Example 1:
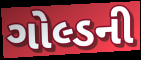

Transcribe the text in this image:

ગોલ્ડની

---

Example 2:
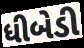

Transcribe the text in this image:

ધીબેડી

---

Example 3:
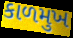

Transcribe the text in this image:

કાળમુખ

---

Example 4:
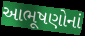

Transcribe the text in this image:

આભૂષણોનાં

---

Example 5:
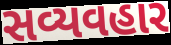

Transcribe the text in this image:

સવ્યવહાર